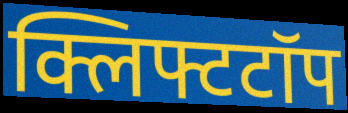
क्लिफ्टटॉप